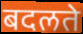
बदलते